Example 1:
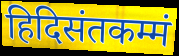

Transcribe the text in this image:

हिदिसंतकम्मं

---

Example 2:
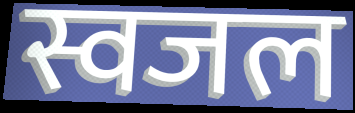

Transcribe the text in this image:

स्वजल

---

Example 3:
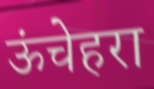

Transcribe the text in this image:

ऊंचेहरा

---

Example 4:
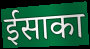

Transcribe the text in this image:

ईसाका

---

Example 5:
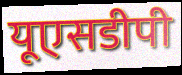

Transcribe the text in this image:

यूएसडीपी